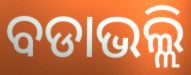
ବଡାଭଲ୍ଲି